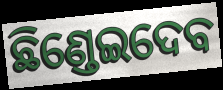
ଛିଣ୍ଡେଇଦେବ